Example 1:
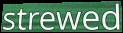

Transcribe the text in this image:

strewed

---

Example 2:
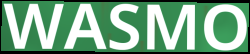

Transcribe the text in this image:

WASMO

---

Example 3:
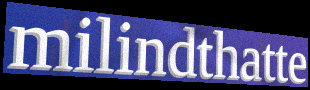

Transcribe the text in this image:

milindthatte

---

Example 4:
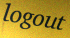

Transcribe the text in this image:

logout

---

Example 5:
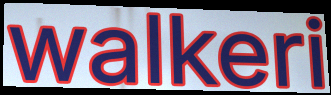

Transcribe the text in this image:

walkeri